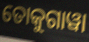
ତୋକୁଗାୱା